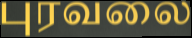
புரவலை